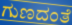
ಗುಣದಂತೆ